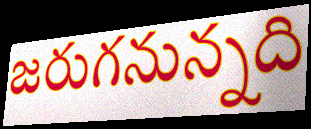
జరుగనున్నది